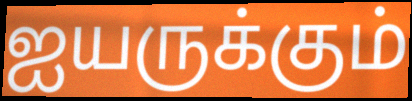
ஐயருக்கும்